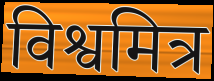
विश्वमित्र